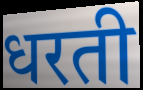
धरती